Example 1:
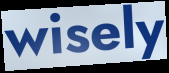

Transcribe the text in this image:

wisely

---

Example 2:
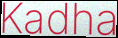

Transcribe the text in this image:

Kadha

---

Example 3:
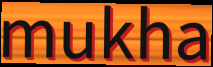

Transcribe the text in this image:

mukha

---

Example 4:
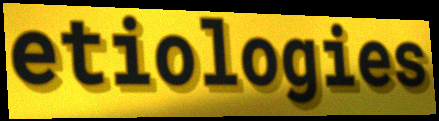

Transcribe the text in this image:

etiologies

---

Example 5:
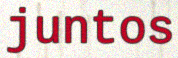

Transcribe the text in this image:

juntos